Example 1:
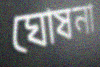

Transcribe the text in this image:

ঘোষনা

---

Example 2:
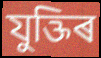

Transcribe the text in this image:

যুক্তিৰ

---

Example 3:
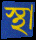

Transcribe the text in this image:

স্থা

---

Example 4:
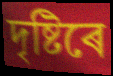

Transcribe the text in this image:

দৃষ্টিৰে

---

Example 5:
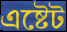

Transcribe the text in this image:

এষ্টেট